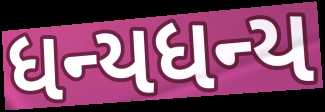
ધન્યધન્ય